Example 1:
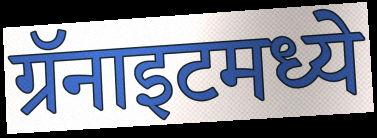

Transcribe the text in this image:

ग्रॅनाइटमध्ये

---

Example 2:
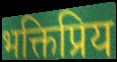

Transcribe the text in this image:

भक्तिप्रिय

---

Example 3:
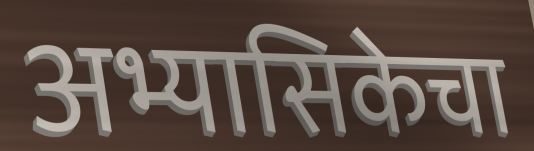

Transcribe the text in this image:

अभ्यासिकेचा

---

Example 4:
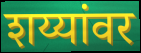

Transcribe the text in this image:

शय्यांवर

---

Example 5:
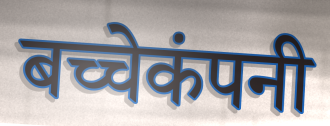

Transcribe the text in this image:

बच्चेकंपनी